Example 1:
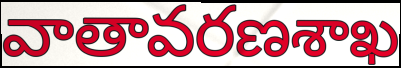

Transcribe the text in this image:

వాతావరణశాఖ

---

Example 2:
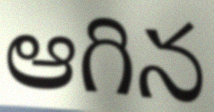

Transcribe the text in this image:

ఆగిన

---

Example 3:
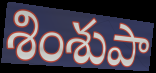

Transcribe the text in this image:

శింశుపా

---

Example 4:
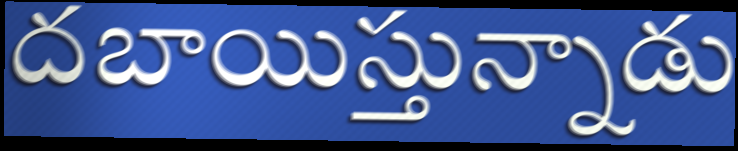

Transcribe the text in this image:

దబాయిస్తున్నాడు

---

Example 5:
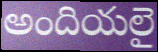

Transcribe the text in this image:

అందియలై